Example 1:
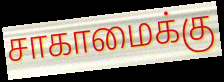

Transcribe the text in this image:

சாகாமைக்கு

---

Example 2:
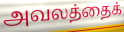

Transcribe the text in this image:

அவலத்தைக்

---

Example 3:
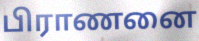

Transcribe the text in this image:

பிராணனை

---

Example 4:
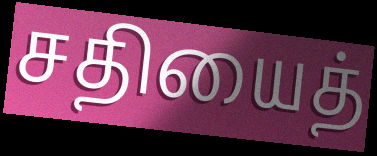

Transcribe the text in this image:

சதியைத்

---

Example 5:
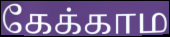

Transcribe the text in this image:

கேக்காம